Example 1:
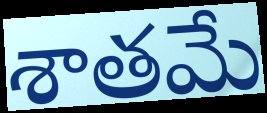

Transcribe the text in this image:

శాతమే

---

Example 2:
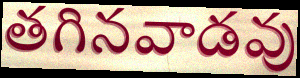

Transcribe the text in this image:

తగినవాడవు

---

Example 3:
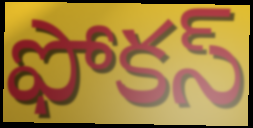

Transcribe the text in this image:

ఫోకస్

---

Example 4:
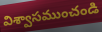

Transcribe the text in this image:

విశ్వాసముంచండి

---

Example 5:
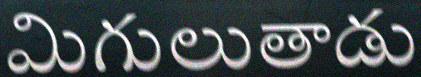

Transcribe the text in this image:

మిగులుతాడు